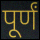
पूर्णं